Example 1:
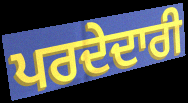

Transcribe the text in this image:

ਪਰਦੇਦਾਰੀ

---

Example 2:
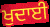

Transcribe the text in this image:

ਖੁਦਾਈ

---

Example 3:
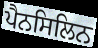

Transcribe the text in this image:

ਪੈਨਸਿਲਿਨ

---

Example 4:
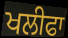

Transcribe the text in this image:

ਖਲੀਫਾ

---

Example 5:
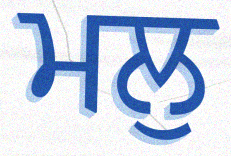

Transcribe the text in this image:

ਮਲੁ